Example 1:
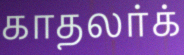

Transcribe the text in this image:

காதலர்க்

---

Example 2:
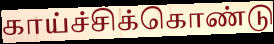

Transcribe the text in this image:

காய்ச்சிக்கொண்டு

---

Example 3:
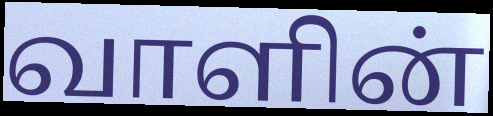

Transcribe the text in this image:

வாளின்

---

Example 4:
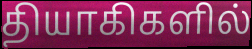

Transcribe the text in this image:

தியாகிகளில்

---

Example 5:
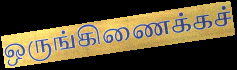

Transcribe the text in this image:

ஒருங்கிணைக்கச்